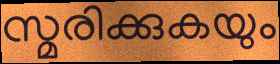
സ്മരിക്കുകയും